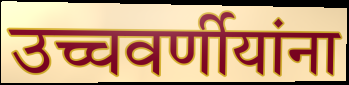
उच्चवर्णीयांना